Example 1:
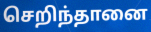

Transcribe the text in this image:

செறிந்தானை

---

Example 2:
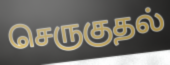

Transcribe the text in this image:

செருகுதல்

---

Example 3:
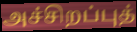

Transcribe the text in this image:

அச்சிறப்புத்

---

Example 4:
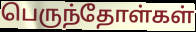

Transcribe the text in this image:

பெருந்தோள்கள்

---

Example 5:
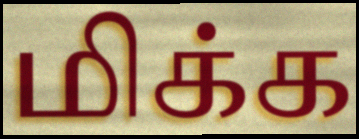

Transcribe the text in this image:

மிக்க